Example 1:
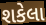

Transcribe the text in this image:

શકેલા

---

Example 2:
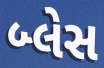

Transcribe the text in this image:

બ્લેસ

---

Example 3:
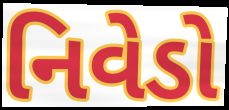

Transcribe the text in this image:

નિવેડો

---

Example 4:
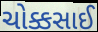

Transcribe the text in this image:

ચોક્કસાઈ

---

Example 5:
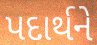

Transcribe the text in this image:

પદાર્થને